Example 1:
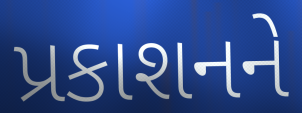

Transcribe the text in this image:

પ્રકાશનને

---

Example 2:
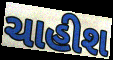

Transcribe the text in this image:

ચાહીશ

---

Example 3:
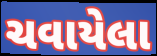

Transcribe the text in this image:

ચવાયેલા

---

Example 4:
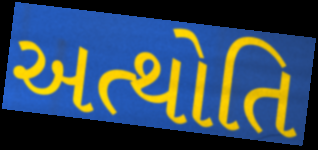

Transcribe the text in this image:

અત્થોતિ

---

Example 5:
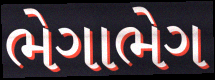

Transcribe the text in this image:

ભેગાભેગ